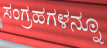
ಸಂಗ್ರಹಗಳನ್ನೂ